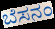
ಬೆಸನಂ